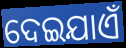
ଦେଇଯାଏଁ